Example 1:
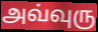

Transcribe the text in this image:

அவ்வுரு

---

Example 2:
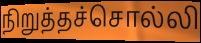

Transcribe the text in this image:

நிறுத்தச்சொல்லி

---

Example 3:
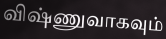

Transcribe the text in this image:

விஷ்ணுவாகவும்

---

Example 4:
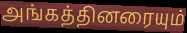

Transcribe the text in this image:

அங்கத்தினரையும்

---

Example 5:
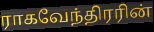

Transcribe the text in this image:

ராகவேந்திரரின்